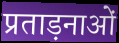
प्रताड़नाओं